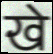
खे